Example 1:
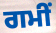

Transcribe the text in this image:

ਗਮੀਂ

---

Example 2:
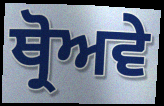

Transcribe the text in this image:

ਥ੍ਰੋਅਵੇ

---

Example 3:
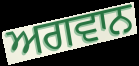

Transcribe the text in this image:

ਅਗਵਾਨ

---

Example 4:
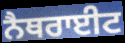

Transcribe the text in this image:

ਨੈਥਰਾਈਟ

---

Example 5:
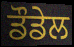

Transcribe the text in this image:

ਡੌਡੇਲ